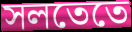
সলতেতে